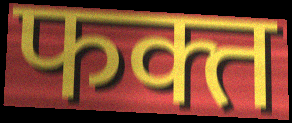
फक्‍त